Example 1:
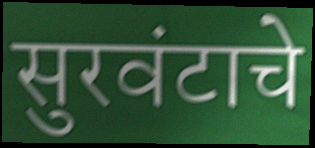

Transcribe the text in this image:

सुरवंटाचे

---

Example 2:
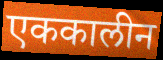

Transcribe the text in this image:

एककालीन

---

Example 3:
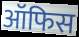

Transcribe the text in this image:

ऑफिस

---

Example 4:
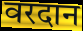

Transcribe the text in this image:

वरदान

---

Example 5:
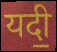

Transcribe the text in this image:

यदी॒